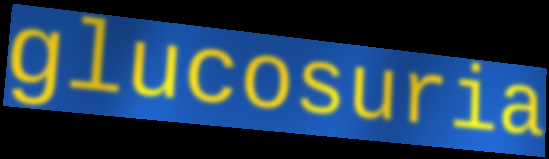
glucosuria